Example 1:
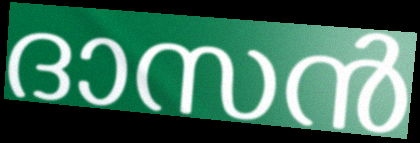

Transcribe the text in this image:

ദാസൻ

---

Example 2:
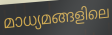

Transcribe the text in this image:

മാധ്യമങ്ങളിലെ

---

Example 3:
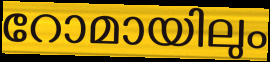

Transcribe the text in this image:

റോമായിലും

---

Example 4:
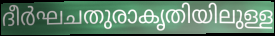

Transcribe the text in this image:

ദീർഘചതുരാകൃതിയിലുള്ള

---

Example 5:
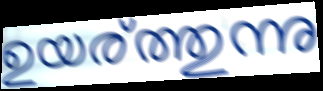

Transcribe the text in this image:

ഉയര്ത്തുന്നു